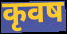
कृवष